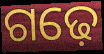
ଗଢ଼େ